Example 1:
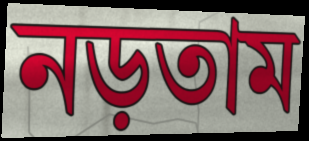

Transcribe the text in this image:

নড়তাম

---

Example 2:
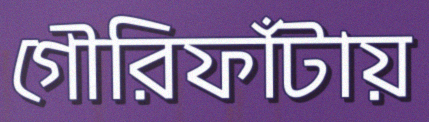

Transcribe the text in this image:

গৌরিফাঁটায়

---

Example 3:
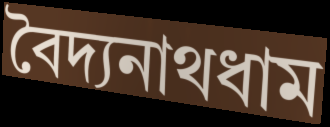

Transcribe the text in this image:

বৈদ্যনাথধাম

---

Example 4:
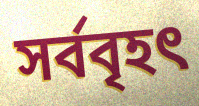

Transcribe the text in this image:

সর্ববৃহৎ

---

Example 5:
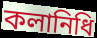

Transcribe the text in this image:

কলানিধি